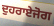
ਦੁਹਰਾਏਜੋਗ